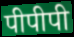
पीपीपी